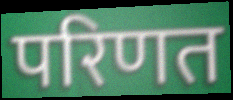
परिणत